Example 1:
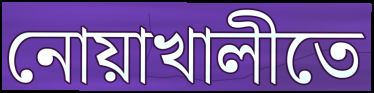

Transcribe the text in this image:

নোয়াখালীতে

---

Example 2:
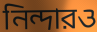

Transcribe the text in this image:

নিন্দারও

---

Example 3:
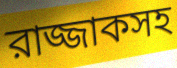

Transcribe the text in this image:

রাজ্জাকসহ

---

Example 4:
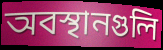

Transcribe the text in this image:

অবস্থানগুলি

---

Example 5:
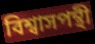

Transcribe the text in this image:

বিশ্বাসপন্থী